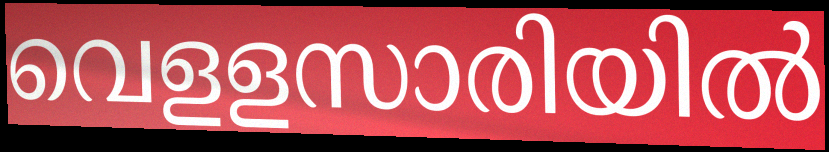
വെളളസാരിയിൽ